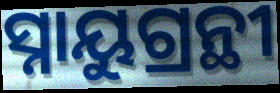
ସ୍ନାୟୁଗ୍ରନ୍ଥୀ